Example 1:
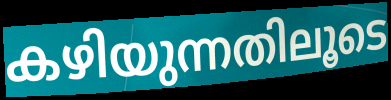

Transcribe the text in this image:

കഴിയുന്നതിലൂടെ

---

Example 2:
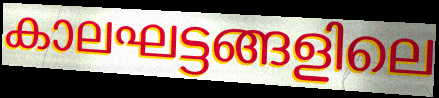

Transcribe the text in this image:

കാലഘട്ടങ്ങളിലെ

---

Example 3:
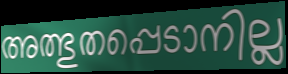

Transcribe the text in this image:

അത്ഭുതപ്പെടാനില്ല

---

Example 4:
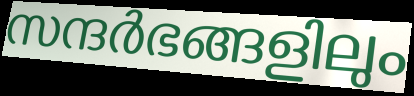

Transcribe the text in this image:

സന്ദർഭങ്ങളിലും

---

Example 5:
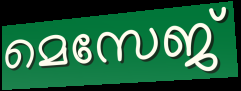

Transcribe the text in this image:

മെസേജ്